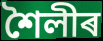
শৈলীৰ